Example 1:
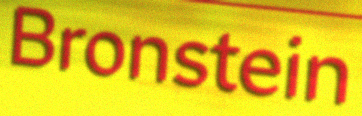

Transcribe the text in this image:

Bronstein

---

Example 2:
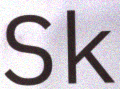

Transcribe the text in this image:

Sk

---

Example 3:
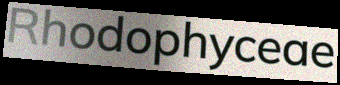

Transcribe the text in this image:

Rhodophyceae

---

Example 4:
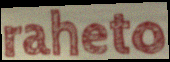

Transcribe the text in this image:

raheto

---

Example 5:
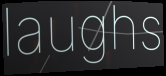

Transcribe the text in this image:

laughs